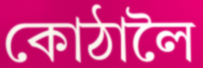
কোঠালৈ